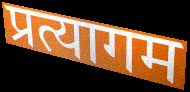
प्रत्यागम